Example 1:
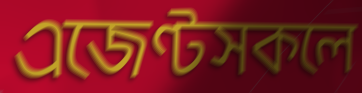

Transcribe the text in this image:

এজেণ্টসকলে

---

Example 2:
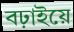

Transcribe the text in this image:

বঢ়াইয়ে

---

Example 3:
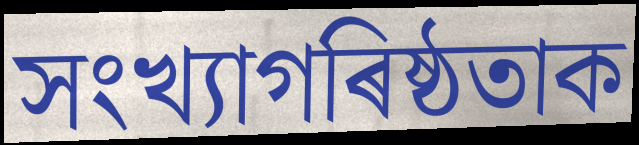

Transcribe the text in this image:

সংখ্যাগৰিষ্ঠতাক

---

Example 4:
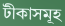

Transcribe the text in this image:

টীকাসমূহ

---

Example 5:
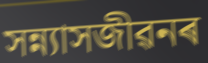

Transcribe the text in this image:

সন্ন্যাসজীৱনৰ